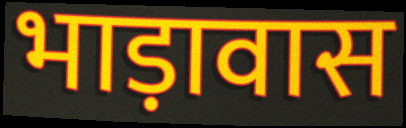
भाड़ावास